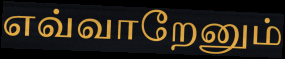
எவ்வாறேனும்